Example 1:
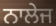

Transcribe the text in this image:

ਨਾਲੇਜ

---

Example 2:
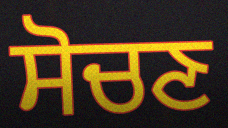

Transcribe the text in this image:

ਸੋਚਣ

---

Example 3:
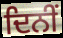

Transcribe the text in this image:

ਦਿਨੀਂ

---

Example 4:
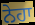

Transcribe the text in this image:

ਨੇਹਾ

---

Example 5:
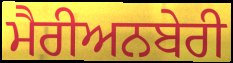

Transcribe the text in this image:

ਮੈਰੀਅਨਬੇਰੀ